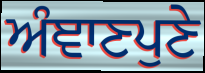
ਅੰਞਾਣਪੁਣੇ